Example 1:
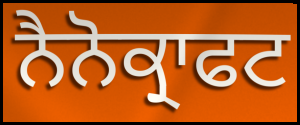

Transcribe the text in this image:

ਨੈਨੋਕ੍ਰਾਫਟ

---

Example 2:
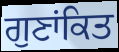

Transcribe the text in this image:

ਗੁਣਾਂਕਿਤ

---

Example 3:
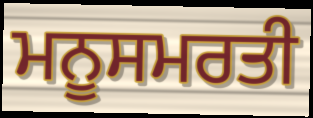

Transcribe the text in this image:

ਮਨੂਸਮਰਤੀ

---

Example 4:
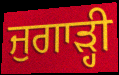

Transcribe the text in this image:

ਜੁਗਾੜ੍ਹੀ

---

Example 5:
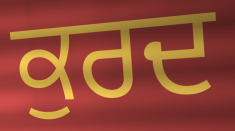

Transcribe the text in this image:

ਕੁਰਦ